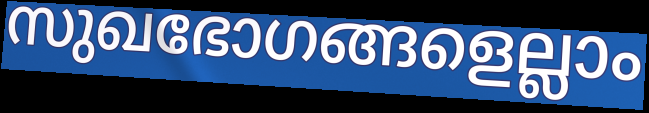
സുഖഭോഗങ്ങളെല്ലാം